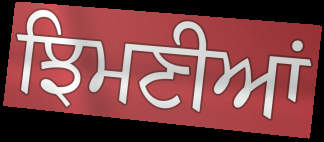
ਝਿਮਣੀਆਂ